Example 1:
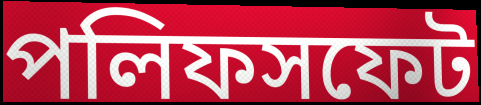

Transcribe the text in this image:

পলিফসফেট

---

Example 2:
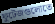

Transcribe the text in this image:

ফুটেজগুলোতে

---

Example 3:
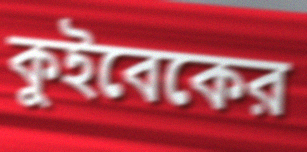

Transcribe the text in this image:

কুইবেকের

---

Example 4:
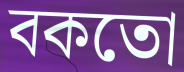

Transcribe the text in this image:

বকতো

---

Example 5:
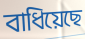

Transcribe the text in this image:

বাধিয়েছে